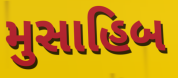
મુસાહિબ